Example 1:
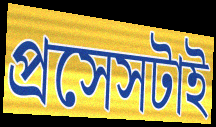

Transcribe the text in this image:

প্রসেসটাই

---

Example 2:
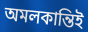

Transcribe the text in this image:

অমলকান্তিই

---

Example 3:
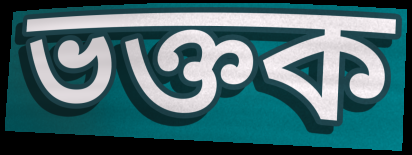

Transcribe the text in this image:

ভক্তক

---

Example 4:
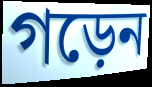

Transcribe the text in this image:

গড়েন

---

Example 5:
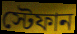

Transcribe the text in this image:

স্টেফান